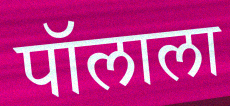
पॉलाला